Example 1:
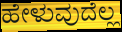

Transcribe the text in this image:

ಹೇಳುವುದೆಲ್ಲ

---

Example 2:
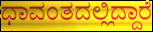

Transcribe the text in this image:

ಧಾವಂತದಲ್ಲಿದ್ದಾರೆ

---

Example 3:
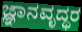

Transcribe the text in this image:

ಜ್ಞಾನವೃದ್ಧರ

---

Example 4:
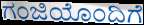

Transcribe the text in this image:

ಗಂಜಿಯೊಂದಿಗೆ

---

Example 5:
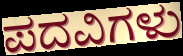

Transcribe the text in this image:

ಪದವಿಗಳು